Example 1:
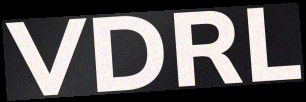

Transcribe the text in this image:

VDRL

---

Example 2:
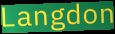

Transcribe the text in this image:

Langdon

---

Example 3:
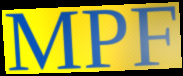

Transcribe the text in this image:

MPF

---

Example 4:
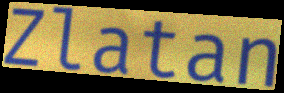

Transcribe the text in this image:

Zlatan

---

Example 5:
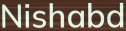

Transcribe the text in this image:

Nishabd